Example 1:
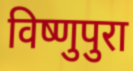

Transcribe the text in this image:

विष्णुपुरा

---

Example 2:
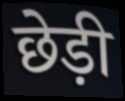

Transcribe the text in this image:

छेड़ी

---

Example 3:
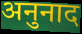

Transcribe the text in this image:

अनुनाद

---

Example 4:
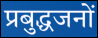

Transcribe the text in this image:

प्रबुद्धजनों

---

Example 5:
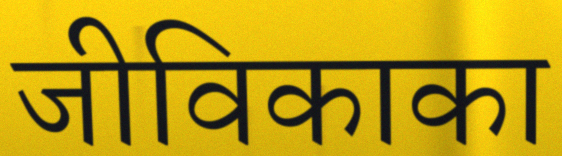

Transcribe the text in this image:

जीविकाका